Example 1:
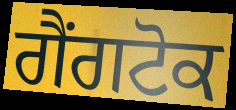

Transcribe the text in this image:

ਗੈਂਗਟੋਕ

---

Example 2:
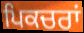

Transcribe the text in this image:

ਪਿਕਚਰਾਂ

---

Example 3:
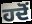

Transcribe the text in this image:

ਹਦੋਂ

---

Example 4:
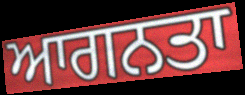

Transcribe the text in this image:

ਆਗਨਤਾ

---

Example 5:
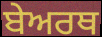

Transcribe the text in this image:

ਬੇਅਰਥ